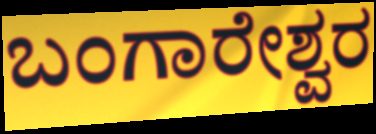
ಬಂಗಾರೇಶ್ವರ